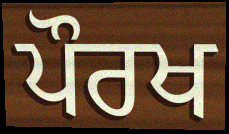
ਪੌਰਖ